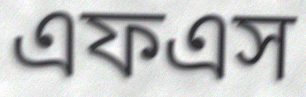
এফএস